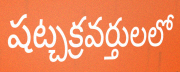
షట్చక్రవర్తులలో